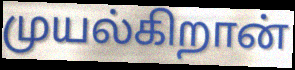
முயல்கிறான்